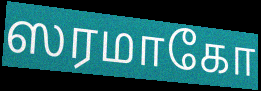
ஸரமாகோ